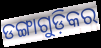
ଡଙ୍ଗାଗୁଡ଼ିକର